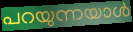
പറയുന്നയാൾ